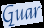
Guar